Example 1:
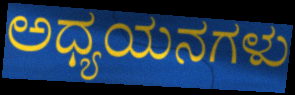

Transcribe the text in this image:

ಅಧ್ಯಯನಗಳು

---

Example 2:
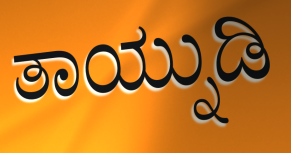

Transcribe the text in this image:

ತಾಯ್ನುಡಿ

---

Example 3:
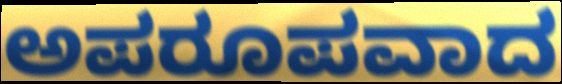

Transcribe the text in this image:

ಅಪರೂಪವಾದ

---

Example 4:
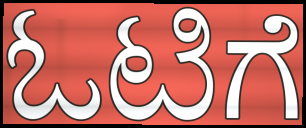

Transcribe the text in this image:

ಓಟಿಗೆ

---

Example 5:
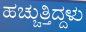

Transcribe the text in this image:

ಹಚ್ಚುತ್ತಿದ್ದಳು